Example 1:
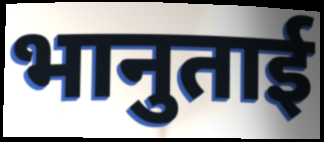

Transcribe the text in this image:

भानुताई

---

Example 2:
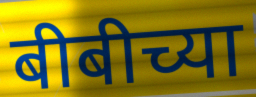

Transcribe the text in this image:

बीबीच्या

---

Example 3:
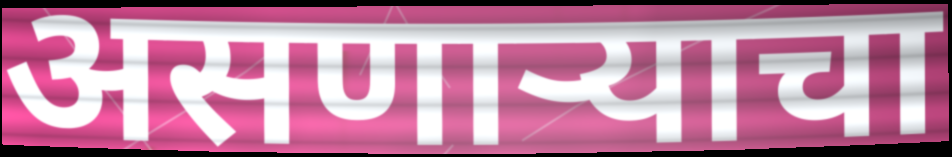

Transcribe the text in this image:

असणाऱ्याचा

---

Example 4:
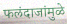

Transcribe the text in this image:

फलंदाजांमुळे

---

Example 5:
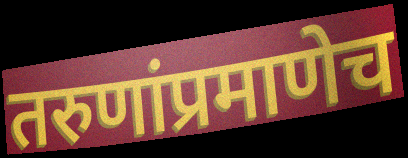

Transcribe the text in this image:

तरुणांप्रमाणेच